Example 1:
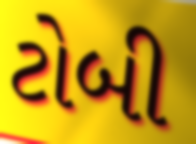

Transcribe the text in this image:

ટોબી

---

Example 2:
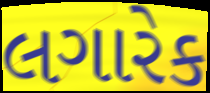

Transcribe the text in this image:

લગારેક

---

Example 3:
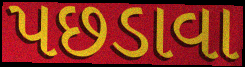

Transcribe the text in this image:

પછડાવા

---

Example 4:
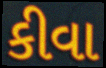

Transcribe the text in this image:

કીવા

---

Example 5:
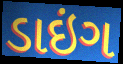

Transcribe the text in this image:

ડાઇંગ